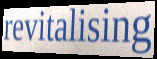
revitalising